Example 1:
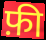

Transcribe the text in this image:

फ़ी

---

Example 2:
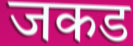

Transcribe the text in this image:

जकड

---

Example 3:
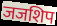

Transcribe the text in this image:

जजशिप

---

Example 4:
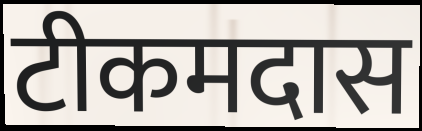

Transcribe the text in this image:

टीकमदास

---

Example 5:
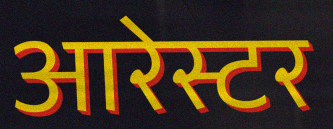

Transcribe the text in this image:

आरेस्टर